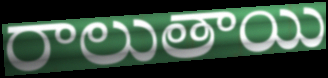
రాలుతాయి